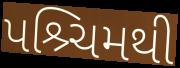
પશ્ર્ચિમથી